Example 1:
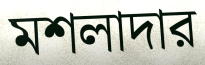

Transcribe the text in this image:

মশলাদার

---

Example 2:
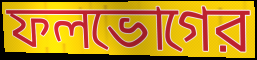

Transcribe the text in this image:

ফলভোগের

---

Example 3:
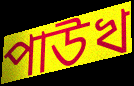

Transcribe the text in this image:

পাউখ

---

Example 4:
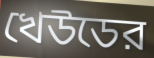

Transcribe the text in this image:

খেউডের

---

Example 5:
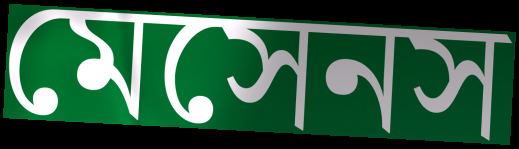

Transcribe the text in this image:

মেসেনস